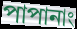
পাপানাং